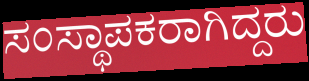
ಸಂಸ್ಥಾಪಕರಾಗಿದ್ದರು